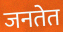
जनतेत